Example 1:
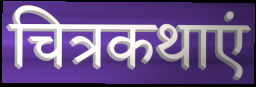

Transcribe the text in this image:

चित्रकथाएं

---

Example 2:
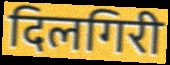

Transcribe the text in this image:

दिलगिरी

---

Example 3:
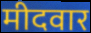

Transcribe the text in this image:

मीदवार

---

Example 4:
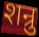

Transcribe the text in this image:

शन्रु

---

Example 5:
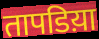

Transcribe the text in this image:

तापडिय़ा